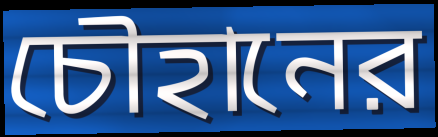
চৌহানের